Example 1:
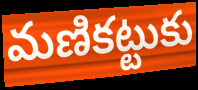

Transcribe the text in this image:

మణికట్టుకు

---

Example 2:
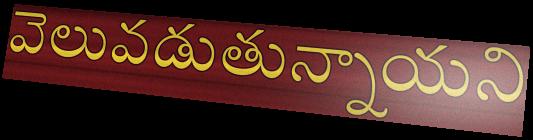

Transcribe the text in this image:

వెలువడుతున్నాయని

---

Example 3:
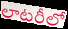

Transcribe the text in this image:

లాటరీలో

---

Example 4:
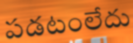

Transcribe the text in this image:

పడటంలేదు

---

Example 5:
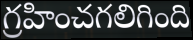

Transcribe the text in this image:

గ్రహించగలిగింది